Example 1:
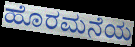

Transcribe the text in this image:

ಹೊರಮನೆಯ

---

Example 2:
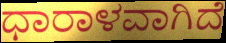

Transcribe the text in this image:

ಧಾರಾಳವಾಗಿದೆ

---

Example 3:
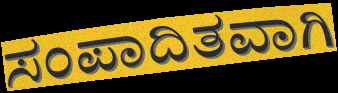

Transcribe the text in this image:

ಸಂಪಾದಿತವಾಗಿ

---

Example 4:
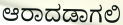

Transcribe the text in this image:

ಆರಾದಡಾಗಲಿ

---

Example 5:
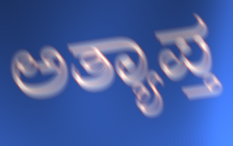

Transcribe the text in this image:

ಅತ್ಯಾಪ್ತ